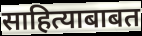
साहित्याबाबत